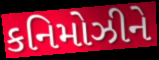
કનિમોઝીને